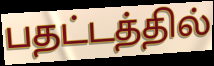
பதட்டத்தில்